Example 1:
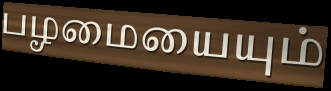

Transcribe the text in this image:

பழமையையும்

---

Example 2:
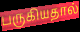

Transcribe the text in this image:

பருகியதால்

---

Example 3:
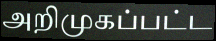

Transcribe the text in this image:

அறிமுகப்பட்ட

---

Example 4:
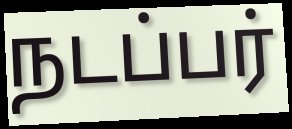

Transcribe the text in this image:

நடப்பர்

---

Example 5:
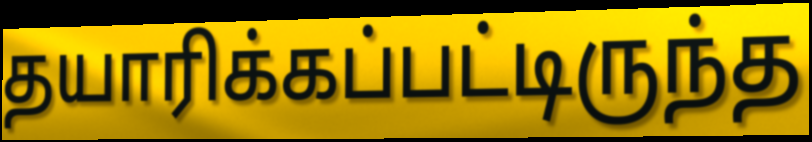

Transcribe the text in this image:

தயாரிக்கப்பட்டிருந்த